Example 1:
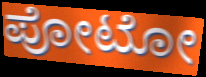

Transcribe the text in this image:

ಪೋಟೋ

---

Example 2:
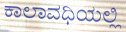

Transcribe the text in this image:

ಕಾಲಾವಧಿಯಲ್ಲಿ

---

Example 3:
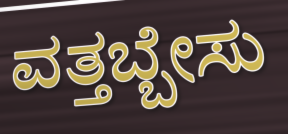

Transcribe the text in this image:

ವತ್ತಬ್ಬೇಸು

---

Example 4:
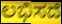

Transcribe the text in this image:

ಲಭಿಸದೆ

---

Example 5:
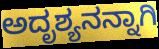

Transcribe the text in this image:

ಅದೃಶ್ಯನನ್ನಾಗಿ